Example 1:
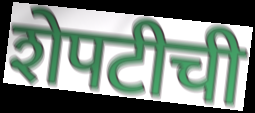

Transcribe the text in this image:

शेपटीची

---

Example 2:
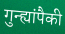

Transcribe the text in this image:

गुन्ह्यांपैकी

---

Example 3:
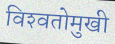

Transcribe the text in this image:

विश्वतोमुखी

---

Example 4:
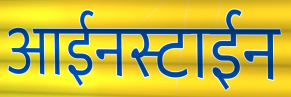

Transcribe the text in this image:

आईनस्टाईन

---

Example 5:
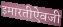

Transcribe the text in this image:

इमारतीऐवजी